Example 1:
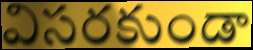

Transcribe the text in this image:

విసరకుండా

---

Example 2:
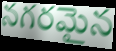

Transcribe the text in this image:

నగరమైన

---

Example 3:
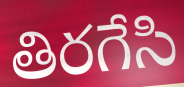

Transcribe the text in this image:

తిరగేసి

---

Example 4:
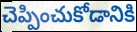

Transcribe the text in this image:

చెప్పించుకోడానికి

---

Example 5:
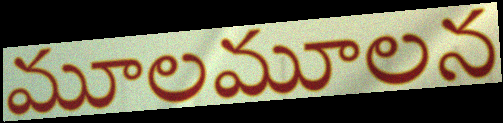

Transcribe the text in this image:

మూలమూలన